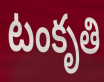
టంకృతి